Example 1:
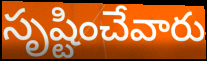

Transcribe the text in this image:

సృష్టించేవారు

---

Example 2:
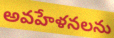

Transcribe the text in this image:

అవహేళనలను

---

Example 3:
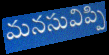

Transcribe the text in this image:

మనసువిప్పి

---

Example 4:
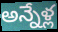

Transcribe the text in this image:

అన్నేళ్ల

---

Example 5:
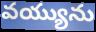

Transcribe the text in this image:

వయ్యును